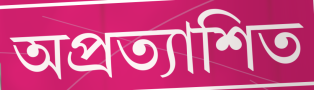
অপ্ৰত্যাশিত